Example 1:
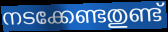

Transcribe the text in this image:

നടക്കേണ്ടതുണ്ട്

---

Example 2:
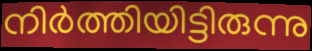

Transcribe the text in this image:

നിർത്തിയിട്ടിരുന്നു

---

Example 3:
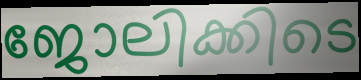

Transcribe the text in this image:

ജോലിക്കിടെ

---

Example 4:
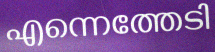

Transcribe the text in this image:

എന്നെത്തേടി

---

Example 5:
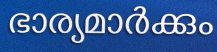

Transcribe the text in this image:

ഭാര്യമാർക്കും